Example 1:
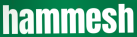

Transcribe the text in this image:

hammesh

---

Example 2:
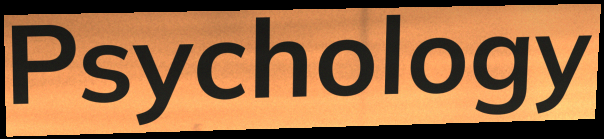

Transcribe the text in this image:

Psychology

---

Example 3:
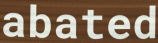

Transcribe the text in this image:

abated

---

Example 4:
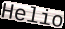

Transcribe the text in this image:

Helio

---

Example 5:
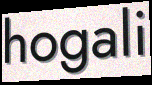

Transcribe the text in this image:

hogali